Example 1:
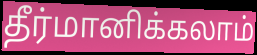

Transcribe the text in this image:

தீர்மானிக்கலாம்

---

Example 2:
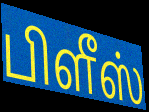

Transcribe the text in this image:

பிளீஸ்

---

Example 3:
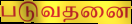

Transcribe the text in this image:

படுவதனை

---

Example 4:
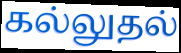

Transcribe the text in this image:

கல்லுதல்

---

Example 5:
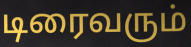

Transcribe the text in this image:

டிரைவரும்